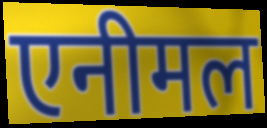
एनीमल